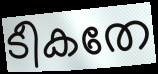
ടീകതേ